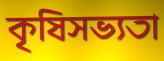
কৃষিসভ্যতা